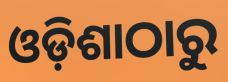
ଓଡ଼ିଶାଠାରୁ